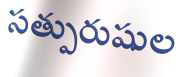
సత్పురుషుల